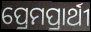
ପ୍ରେମପ୍ରାର୍ଥୀ